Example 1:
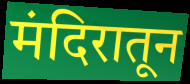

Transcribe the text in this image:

मंदिरातून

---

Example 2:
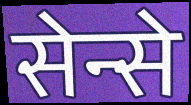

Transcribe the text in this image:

सेन्से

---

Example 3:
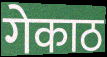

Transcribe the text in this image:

गेकाठ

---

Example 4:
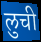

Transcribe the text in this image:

लुची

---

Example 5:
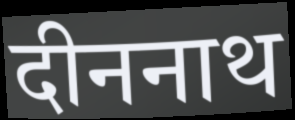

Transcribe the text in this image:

दीननाथ